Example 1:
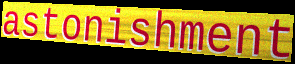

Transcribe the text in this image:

astonishment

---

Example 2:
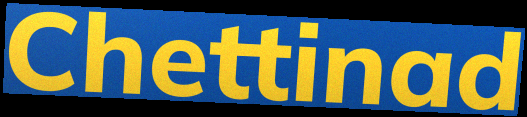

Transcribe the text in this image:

Chettinad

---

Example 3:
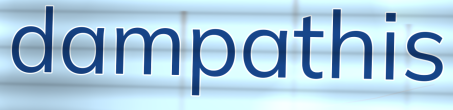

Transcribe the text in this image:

dampathis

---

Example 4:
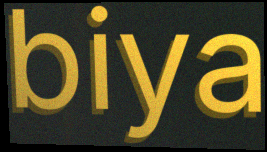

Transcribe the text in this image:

biya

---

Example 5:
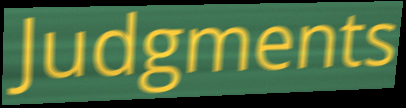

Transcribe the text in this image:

Judgments